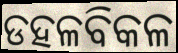
ଡହଳବିକଳ